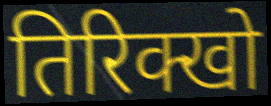
तिरिक्खो